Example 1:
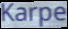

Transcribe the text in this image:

Karpe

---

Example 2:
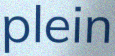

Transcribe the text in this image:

plein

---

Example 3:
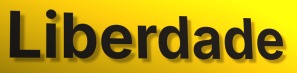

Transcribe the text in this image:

Liberdade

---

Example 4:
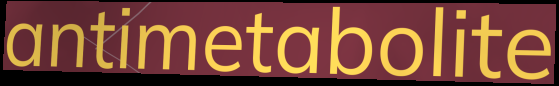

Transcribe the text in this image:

antimetabolite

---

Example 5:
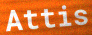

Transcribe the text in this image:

Attis